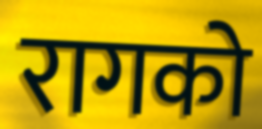
रागको